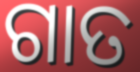
ଗାତ